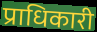
प्राधिकारी